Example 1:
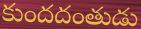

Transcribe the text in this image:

కుందదంతుడు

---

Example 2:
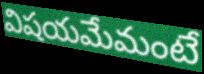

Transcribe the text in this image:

విషయమేమంటే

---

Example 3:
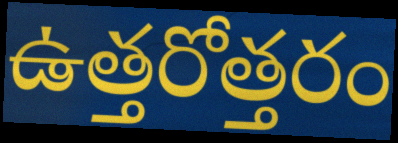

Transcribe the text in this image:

ఉత్తరోత్తరం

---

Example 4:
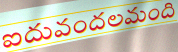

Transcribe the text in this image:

ఐదువందలమంది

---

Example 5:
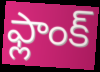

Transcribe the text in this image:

ఫ్లాంక్